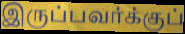
இருப்பவர்க்குப்